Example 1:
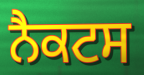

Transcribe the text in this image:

ਨੈਕਟਸ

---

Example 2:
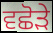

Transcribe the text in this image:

ਵਛੋੜੇ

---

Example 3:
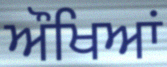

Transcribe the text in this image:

ਔਖਿਆਂ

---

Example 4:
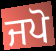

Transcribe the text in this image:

ਜਪੋ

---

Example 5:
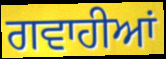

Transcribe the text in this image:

ਗਵਾਹੀਆਂ